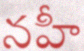
నహీ